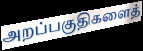
அறப்பகுதிகளைத்